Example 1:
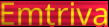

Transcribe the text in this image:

Emtriva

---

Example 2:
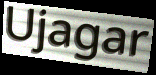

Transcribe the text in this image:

Ujagar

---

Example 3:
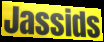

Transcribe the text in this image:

Jassids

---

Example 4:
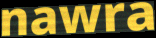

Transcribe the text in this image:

nawra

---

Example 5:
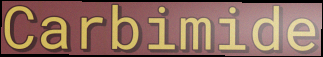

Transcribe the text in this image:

Carbimide